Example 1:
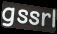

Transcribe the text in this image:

gssrl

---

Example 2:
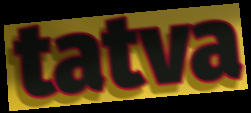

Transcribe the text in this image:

tatva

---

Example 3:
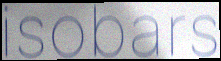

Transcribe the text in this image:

isobars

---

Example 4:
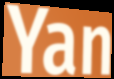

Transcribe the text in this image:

Yan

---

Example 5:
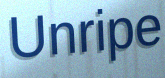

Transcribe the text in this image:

Unripe